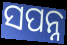
ସପନ୍ନ